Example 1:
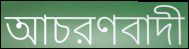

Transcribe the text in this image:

আচরণবাদী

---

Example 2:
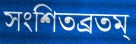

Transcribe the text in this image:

সংশিতব্রতম্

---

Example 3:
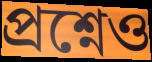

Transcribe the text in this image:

প্রশ্নেও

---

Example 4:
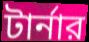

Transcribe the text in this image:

টার্নার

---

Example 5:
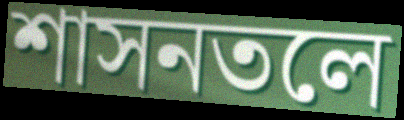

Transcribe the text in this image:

শাসনতলে